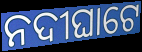
ନଦୀଘାଟେ